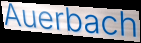
Auerbach